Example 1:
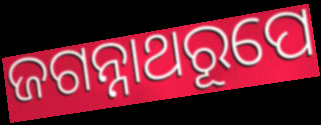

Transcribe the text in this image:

ଜଗନ୍ନାଥରୂପେ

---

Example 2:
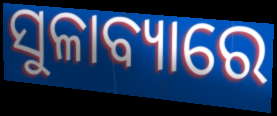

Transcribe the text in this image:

ସୁଳାବ୍ୟାରେ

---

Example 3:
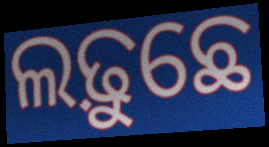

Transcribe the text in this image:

ଲଢ଼ୁଛେ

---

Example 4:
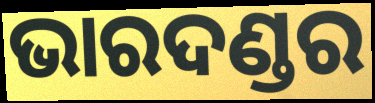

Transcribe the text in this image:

ଭାରଦଣ୍ଡର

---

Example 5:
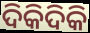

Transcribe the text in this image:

ଦିକିଦିକି